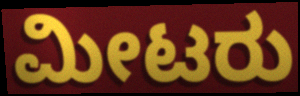
ಮೀಟರು